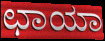
ಛಾಯಾ